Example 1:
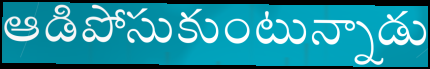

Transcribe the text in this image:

ఆడిపోసుకుంటున్నాడు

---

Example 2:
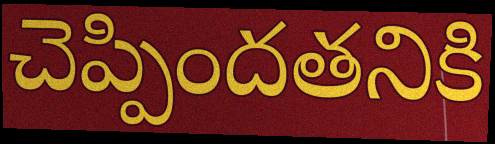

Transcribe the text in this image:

చెప్పిందతనికి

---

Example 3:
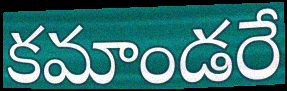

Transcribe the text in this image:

కమాండరే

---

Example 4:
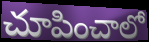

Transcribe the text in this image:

చూపించాలో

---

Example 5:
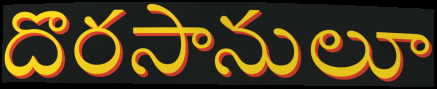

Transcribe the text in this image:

దొరసానులూ